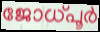
ജോധ്പൂർ